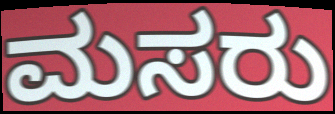
ಮಸರು